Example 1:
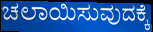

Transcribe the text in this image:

ಚಲಾಯಿಸುವುದಕ್ಕೆ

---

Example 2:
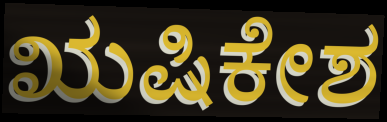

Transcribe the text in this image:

ಋಷಿಕೇಶ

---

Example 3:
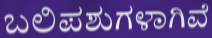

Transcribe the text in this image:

ಬಲಿಪಶುಗಳಾಗಿವೆ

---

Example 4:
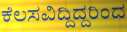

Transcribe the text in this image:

ಕೆಲಸವಿದ್ದಿದ್ದರಿಂದ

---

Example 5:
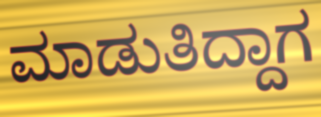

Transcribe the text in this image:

ಮಾಡುತಿದ್ದಾಗ